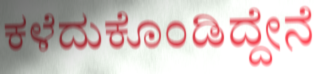
ಕಳೆದುಕೊಂಡಿದ್ದೇನೆ